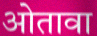
ओतावा